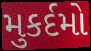
મુકર્દમો